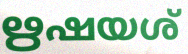
ഋഷയശ്